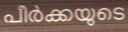
പീർക്കയുടെ